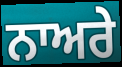
ਨਾਅਰੇ